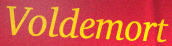
Voldemort